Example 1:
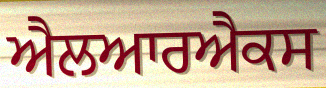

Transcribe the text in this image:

ਐਲਆਰਐਕਸ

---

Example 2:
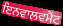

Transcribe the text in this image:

ਇਨਵਾਲਵਮੈਂਟ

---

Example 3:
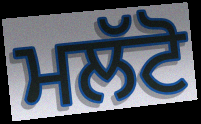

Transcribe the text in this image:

ਮਲੱਟੋ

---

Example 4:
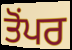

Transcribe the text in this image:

ਤੋਂਪਰ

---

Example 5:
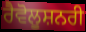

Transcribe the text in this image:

ਰੈਵੋਲੂਸ਼ਨਰੀ